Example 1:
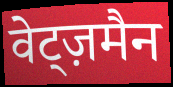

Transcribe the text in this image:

वेट्ज़मैन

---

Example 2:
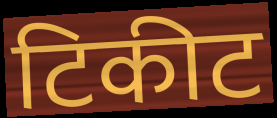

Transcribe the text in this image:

टिकीट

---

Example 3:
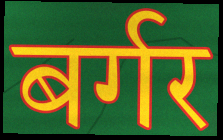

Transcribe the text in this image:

बर्गर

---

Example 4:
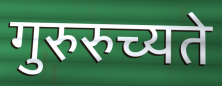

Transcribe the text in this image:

गुरुरुच्यते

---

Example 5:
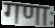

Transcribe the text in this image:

गणाः